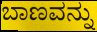
ಬಾಣವನ್ನು